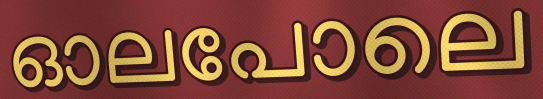
ഓലപോലെ